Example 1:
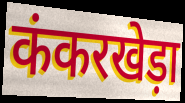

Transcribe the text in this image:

कंकरखेड़ा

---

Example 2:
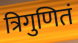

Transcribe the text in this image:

त्रिगुणितं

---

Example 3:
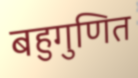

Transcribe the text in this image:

बहुगुणित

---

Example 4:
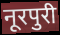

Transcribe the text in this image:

नूरपुरी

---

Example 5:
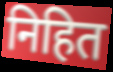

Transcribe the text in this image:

निहित